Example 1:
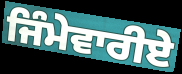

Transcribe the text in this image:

ਜਿੰਮੇਵਾਰੀਏ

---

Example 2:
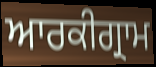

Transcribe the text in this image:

ਆਰਕੀਗ੍ਰਾਮ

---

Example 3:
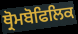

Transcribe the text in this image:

ਥ੍ਰੋਮਬੋਫਿਲਿਕ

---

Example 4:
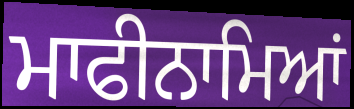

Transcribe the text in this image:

ਮਾਫੀਨਾਮਿਆਂ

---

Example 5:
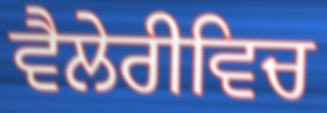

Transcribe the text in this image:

ਵੈਲੇਰੀਵਿਚ